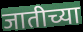
जातीच्या